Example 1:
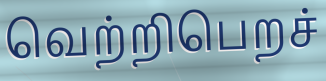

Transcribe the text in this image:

வெற்றிபெறச்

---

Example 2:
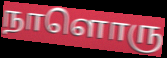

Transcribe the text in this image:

நாளொரு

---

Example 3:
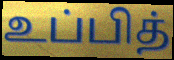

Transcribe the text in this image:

உப்பித்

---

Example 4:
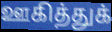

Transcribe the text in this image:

ஊகித்துக்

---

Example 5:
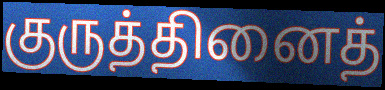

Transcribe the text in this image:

குருத்தினைத்